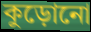
কুড়োনো